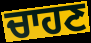
ਚਾਹਣ